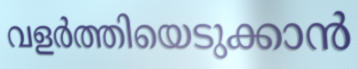
വളർത്തിയെടുക്കാൻ